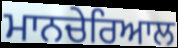
ਮਾਨਚੇਰਿਆਲ